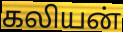
கலியன்